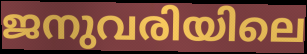
ജനുവരിയിലെ